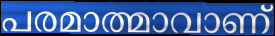
പരമാത്മാവാണ്